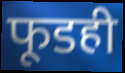
फूडही